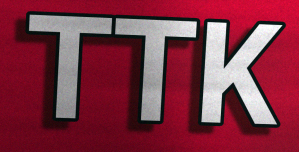
TTK